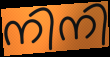
നിനി